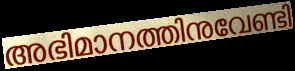
അഭിമാനത്തിനുവേണ്ടി